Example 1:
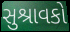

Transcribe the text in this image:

સુશ્રાવકો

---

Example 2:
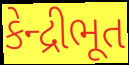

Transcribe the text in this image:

કેન્દ્રીભૂત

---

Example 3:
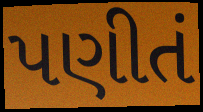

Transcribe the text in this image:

પણીતં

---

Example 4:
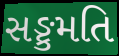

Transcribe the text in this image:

સઙ્કમતિ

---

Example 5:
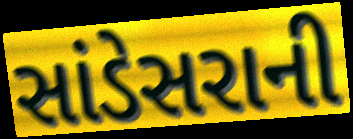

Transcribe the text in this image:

સાંડેસરાની